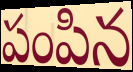
పంపిన